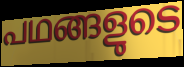
പഥങ്ങളുടെ